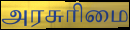
அரசுரிமை